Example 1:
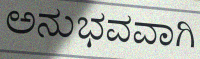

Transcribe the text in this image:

ಅನುಭವವಾಗಿ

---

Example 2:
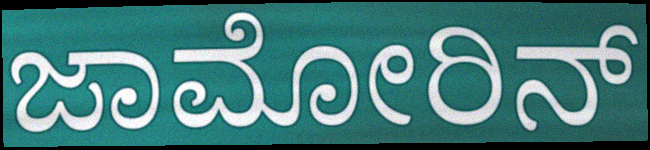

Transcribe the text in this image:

ಜಾಮೋರಿನ್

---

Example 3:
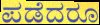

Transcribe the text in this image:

ಪಡೆದರೂ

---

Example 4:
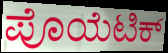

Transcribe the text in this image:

ಪೊಯೆಟಿಕ್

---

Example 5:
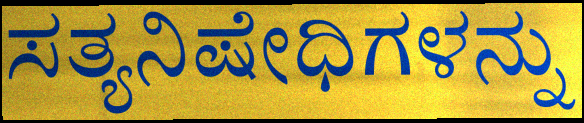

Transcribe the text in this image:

ಸತ್ಯನಿಷೇಧಿಗಳನ್ನು